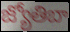
జ్యోతిబా